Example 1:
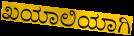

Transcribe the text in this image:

ಖಯಾಲಿಯಾಗಿ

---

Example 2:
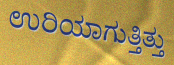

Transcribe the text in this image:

ಉರಿಯಾಗುತ್ತಿತ್ತು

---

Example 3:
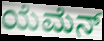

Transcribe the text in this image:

ಯೆಮೆನ್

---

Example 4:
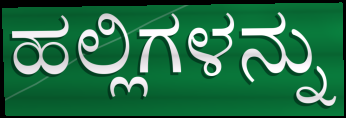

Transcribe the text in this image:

ಹಲ್ಲಿಗಳನ್ನು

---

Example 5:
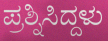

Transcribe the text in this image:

ಪ್ರಶ್ನಿಸಿದ್ದಳು